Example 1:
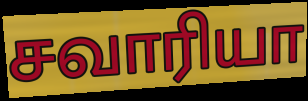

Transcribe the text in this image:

சவாரியா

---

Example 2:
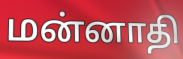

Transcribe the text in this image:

மன்னாதி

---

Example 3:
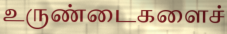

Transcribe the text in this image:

உருண்டைகளைச்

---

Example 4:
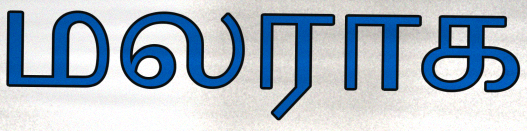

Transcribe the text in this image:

மலராக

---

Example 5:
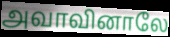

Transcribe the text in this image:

அவாவினாலே